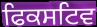
ਫਿਕਸਟਿਵ